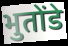
भुतोंडे